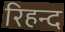
रिहन्द